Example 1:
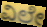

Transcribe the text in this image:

ವಿಲೇ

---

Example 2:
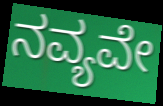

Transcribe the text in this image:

ನವ್ಯವೇ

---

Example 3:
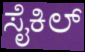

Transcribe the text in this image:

ಸೈಕಿಲ್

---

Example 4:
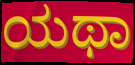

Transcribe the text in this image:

ಯಥಾ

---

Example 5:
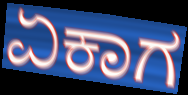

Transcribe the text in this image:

ಏಕಾಗ